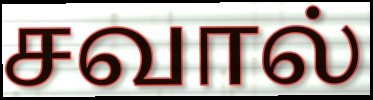
சவால்